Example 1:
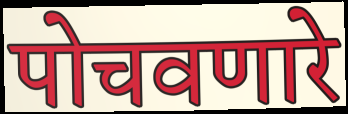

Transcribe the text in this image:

पोचवणारे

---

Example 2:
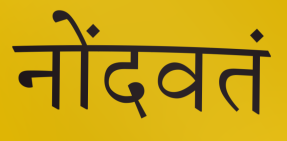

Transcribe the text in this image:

नोंदवतं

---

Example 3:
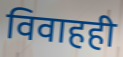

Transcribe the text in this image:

विवाहही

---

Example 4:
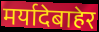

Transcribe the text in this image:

मर्यादेबाहेर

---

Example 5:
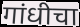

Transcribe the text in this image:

गांधीचा